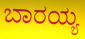
ಬಾರಯ್ಯ